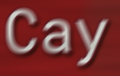
Cay